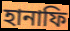
হানাফি